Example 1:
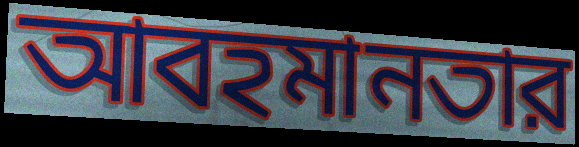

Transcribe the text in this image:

আবহমানতার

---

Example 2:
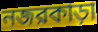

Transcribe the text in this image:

নজরকাড়া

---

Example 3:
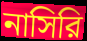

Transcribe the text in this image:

নাসিরি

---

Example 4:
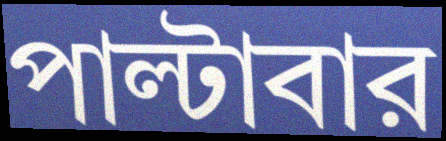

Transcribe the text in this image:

পাল্টাবার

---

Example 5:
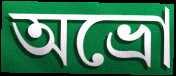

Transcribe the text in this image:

অভ্রো